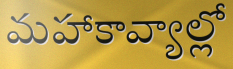
మహాకావ్యాల్లో